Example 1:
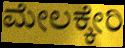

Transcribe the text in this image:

ಮೇಲಕ್ಕೇರಿ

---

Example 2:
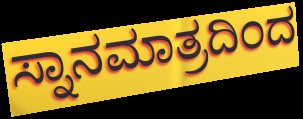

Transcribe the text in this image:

ಸ್ನಾನಮಾತ್ರದಿಂದ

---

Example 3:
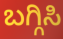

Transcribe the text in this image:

ಬಗ್ಗಿಸಿ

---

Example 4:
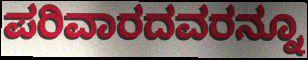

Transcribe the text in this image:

ಪರಿವಾರದವರನ್ನೂ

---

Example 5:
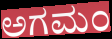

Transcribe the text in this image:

ಅಗಮಂ